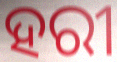
ହରୀ